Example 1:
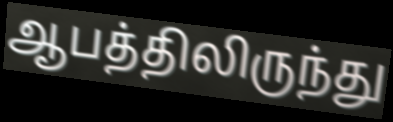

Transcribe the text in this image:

ஆபத்திலிருந்து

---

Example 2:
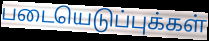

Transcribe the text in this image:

படையெடுப்புக்கள்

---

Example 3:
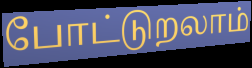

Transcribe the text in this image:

போட்டுறலாம்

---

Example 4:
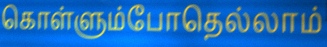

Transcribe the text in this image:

கொள்ளும்போதெல்லாம்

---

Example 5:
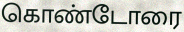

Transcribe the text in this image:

கொண்டோரை